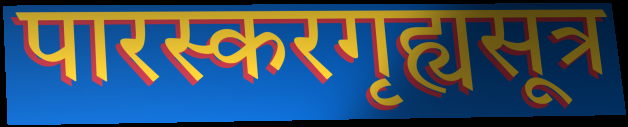
पारस्करगृह्यसूत्र